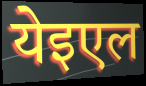
येइएल